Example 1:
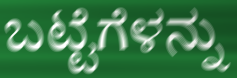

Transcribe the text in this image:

ಬಟ್ಟೆಗೆಳನ್ನು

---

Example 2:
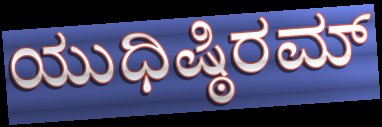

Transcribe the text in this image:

ಯುಧಿಷ್ಠಿರಮ್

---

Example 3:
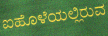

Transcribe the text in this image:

ಐಹೊಳೆಯಲ್ಲಿರುವ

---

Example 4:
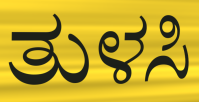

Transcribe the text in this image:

ತುಳಸಿ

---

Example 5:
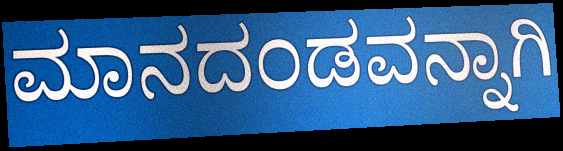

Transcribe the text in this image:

ಮಾನದಂಡವನ್ನಾಗಿ